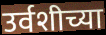
उर्वशीच्या